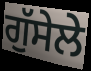
ਗੁੱਸੇਲੇ